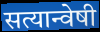
सत्यान्वेषी